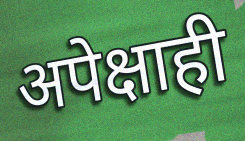
अपेक्षाही